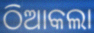
ଠିଆକଲା